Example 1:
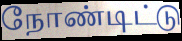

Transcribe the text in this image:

நோண்டிட்டு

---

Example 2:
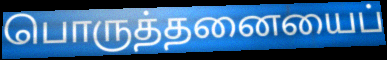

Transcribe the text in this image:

பொருத்தனையைப்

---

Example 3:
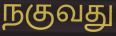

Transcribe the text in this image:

நகுவது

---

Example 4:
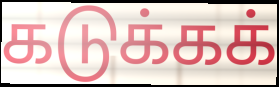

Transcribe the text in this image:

கடுக்கக்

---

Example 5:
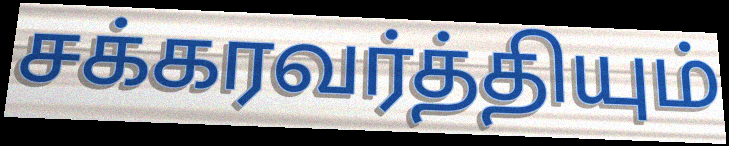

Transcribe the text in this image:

சக்கரவர்த்தியும்